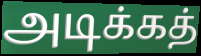
அடிக்கத்